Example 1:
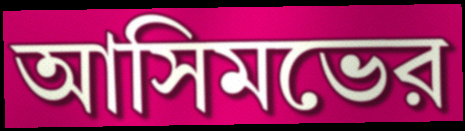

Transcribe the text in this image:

আসিমভের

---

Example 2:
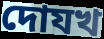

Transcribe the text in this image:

দোযখ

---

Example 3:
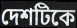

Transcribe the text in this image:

দেশটিকে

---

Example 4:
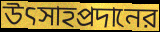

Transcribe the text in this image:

উৎসাহপ্রদানের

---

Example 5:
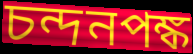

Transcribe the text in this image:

চন্দনপঙ্ক